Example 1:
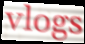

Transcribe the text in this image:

vlogs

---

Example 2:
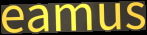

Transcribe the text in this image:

eamus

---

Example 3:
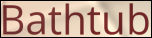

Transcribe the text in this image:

Bathtub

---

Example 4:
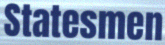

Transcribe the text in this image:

Statesmen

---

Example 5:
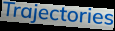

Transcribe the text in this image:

Trajectories